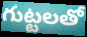
గుట్టలతో